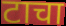
टाचा